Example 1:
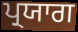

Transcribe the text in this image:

ਪ੍ਰਯਾਗ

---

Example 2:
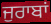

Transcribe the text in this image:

ਜੁਰਾਬਾਂ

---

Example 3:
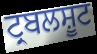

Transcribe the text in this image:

ਟ੍ਰਬਲਸ਼ੂਟ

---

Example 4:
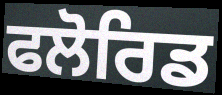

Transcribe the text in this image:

ਫਲੋਰਿਡ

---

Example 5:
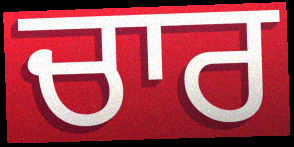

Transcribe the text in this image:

ਚਾਰ